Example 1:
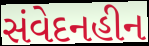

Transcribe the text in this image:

સંવેદનહીન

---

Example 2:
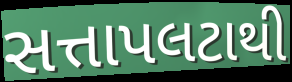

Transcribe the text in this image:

સત્તાપલટાથી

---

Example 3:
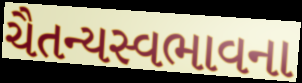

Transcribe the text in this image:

ચૈતન્યસ્વભાવના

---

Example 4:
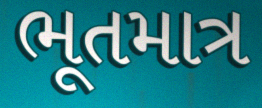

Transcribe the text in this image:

ભૂતમાત્ર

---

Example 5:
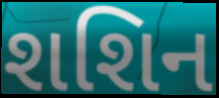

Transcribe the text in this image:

શશિન